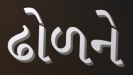
ઢોળને